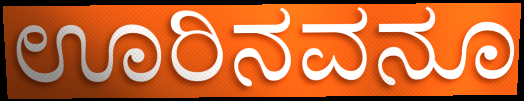
ಊರಿನವನೂ